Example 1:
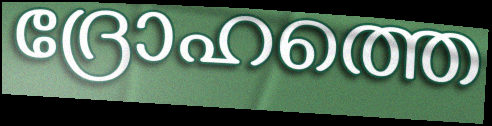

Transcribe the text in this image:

ദ്രോഹത്തെ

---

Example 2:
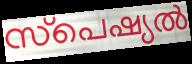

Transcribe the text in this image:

സ്‌പെഷ്യൽ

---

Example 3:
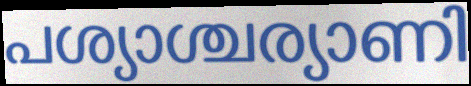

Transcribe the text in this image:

പശ്യാശ്ചര്യാണി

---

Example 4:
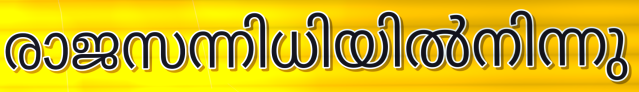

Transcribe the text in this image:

രാജസന്നിധിയിൽനിന്നു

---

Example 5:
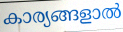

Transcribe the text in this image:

കാര്യങ്ങളാൽ